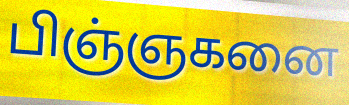
பிஞ்ஞகனை